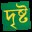
দৃষ্ট